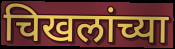
चिखलांच्या